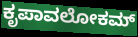
ಕೃಪಾವಲೋಕಮ್